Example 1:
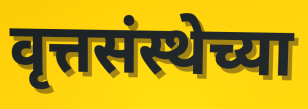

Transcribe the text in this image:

वृत्तसंस्थेच्या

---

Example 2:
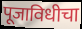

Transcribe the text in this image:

पूजाविधीचा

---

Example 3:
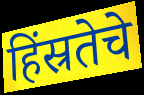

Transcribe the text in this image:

हिंस्रतेचे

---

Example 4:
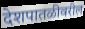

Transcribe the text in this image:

देशपातळीवरील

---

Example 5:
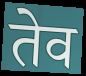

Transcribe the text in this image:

तेव